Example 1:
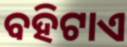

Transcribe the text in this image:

ବହିଟାଏ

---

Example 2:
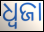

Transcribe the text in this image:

ଧ୍ୱଜା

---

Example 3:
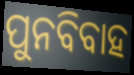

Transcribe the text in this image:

ପୁନବିବାହ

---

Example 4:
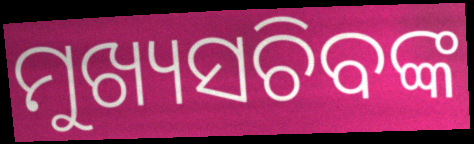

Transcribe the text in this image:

ମୁଖ୍ୟସଚିବଙ୍କ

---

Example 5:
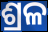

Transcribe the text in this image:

ଶ୍ରଳ